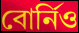
বোৰ্নিও